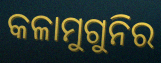
କଳାମୁଗୁନିର